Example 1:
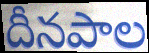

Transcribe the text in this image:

దీనపాల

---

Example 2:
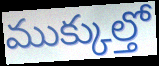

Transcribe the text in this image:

ముక్కుల్తో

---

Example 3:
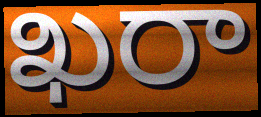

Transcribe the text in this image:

ఖరా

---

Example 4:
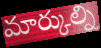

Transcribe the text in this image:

మార్కుల్ని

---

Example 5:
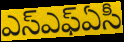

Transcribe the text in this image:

ఎస్ఎఫ్ఏసీ